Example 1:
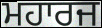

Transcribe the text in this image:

ਮਹਾਰਜ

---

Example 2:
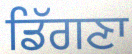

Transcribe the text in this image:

ਡਿੱਗਣਾ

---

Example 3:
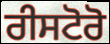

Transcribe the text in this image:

ਰੀਸਟੋਰੋ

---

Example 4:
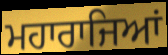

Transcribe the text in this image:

ਮਹਾਰਾਜਿਆਂ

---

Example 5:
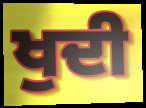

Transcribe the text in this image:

ਖੁਦੀ